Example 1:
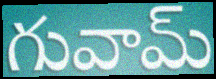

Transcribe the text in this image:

గువామ్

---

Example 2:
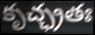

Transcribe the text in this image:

కృచ్ఛ్రతః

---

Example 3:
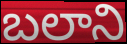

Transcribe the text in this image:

బలాని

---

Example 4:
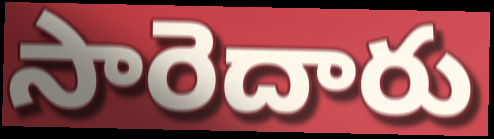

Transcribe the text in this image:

సారెదారు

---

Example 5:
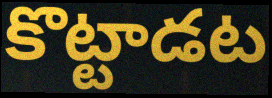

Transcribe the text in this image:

కొట్టాడట